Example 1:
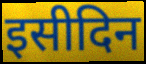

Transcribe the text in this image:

इसीदिन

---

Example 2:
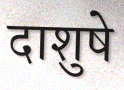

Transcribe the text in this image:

दाशुषे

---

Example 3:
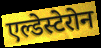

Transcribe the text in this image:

एल्डेस्टेरोन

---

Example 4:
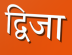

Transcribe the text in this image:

द्विजा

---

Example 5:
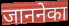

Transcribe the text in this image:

जाननेका